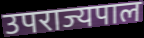
उपराज्यपाल